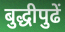
बुद्धीपुढें